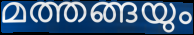
മത്തങ്ങയും